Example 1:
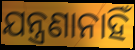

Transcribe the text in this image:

ଯନ୍ତ୍ରଣାନାହିଁ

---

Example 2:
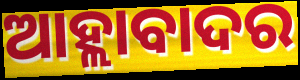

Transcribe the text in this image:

ଆହ୍ଲାବାଦର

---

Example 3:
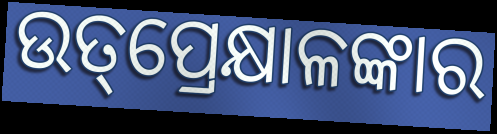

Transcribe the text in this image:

ଉତ୍‌ପ୍ରେକ୍ଷାଳଙ୍କାର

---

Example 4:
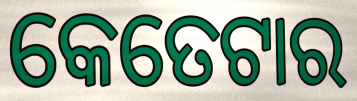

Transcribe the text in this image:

କେତେଟାର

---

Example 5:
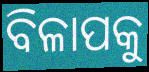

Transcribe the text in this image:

ବିଳାପକୁ